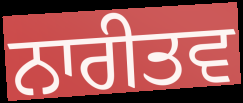
ਨਾਰੀਤਵ